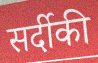
सर्दीकी